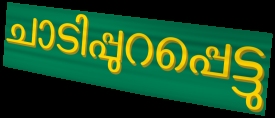
ചാടിപ്പുറപ്പെട്ടു